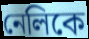
নেলিকে